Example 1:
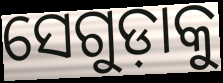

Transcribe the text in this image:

ସେଗୁଡ଼ାକୁ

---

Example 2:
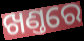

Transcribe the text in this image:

ଖଣ୍ତରେ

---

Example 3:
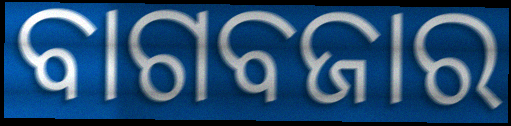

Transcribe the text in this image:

ବାଗବଜାର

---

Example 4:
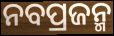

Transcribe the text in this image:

ନବପ୍ରଜନ୍ମ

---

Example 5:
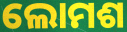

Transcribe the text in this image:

ଲୋମଶ